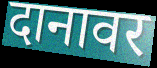
दानावर